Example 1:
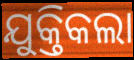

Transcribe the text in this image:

ଯୁକ୍ତିକଲା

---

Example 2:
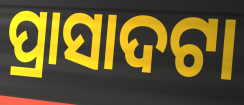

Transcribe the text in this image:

ପ୍ରାସାଦଟା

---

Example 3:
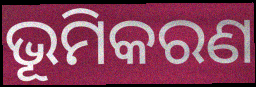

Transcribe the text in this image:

ଭୂମିକରଣ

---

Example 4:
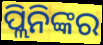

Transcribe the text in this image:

ପ୍ଲିନିଙ୍କର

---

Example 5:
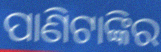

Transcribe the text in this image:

ପାଣିଟାଙ୍କିର